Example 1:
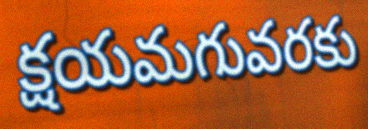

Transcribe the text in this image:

క్షయమగువరకు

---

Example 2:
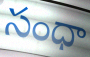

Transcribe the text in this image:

సంధా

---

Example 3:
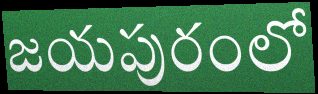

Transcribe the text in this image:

జయపురంలో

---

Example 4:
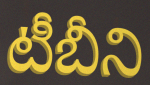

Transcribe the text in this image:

టీబీని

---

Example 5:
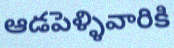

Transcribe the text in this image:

ఆడపెళ్ళివారికి